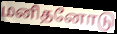
மனிதனோடு